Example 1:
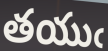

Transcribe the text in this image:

తయుఁ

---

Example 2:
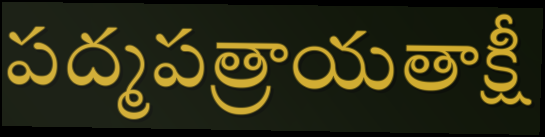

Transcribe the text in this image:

పద్మపత్రాయతాక్షీ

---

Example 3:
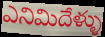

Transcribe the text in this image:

ఎనిమిదేళ్ళు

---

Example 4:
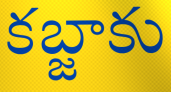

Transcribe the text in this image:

కబ్జాకు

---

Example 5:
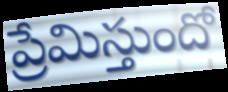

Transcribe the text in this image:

ప్రేమిస్తుందో